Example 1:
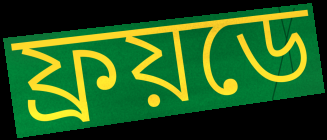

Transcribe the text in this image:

ফ্ৰয়ডে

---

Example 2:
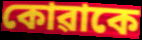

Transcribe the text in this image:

কোৱাকে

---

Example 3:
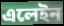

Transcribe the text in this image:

এলেইন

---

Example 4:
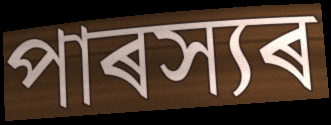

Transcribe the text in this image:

পাৰস্যৰ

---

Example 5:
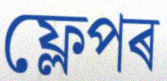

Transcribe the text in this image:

ফ্লেপৰ